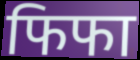
फिफा